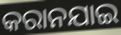
କରାନଯାଇ